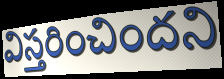
విస్తరించిందని